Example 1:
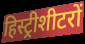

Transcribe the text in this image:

हिस्ट्रीशीटरों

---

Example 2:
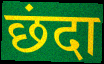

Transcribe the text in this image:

छंदा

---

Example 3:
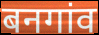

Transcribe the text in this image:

बनगांव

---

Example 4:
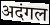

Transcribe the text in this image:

अदंगल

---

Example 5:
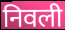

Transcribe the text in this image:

निवली